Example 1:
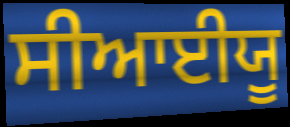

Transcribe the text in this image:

ਸੀਆਈਯੂ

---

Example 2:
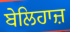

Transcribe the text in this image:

ਬੇਲਿਹਾਜ਼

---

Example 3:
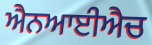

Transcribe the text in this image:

ਐਨਆਈਐਚ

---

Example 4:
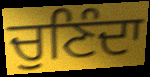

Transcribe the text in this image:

ਚੁਣਿੰਦਾ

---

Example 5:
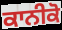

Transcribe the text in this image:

ਕਾਨੀਕੋ